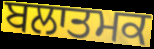
ਬਲਾਤਮਕ